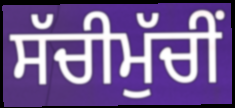
ਸੱਚੀਮੁੱਚੀਂ